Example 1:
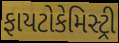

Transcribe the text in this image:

ફાયટોકેમિસ્ટ્રી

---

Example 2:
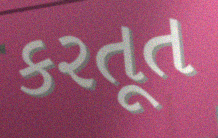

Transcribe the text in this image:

કરતૂત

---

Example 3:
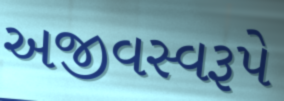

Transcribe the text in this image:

અજીવસ્વરૂપે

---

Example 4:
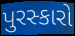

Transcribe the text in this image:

પુરસ્કારો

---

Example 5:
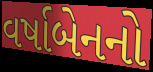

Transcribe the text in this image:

વર્ષાબેનનો